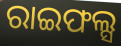
ରାଇଫଲ୍ସ